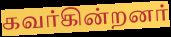
கவர்கின்றனர்